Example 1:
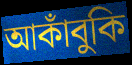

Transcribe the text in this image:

আকাঁবুকি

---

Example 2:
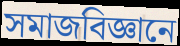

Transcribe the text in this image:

সমাজবিজ্ঞানে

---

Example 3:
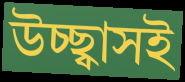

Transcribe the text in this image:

উচ্ছ্বাসই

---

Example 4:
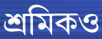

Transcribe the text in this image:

শ্রমিকও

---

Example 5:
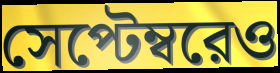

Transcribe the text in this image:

সেপ্টেম্বরেও